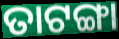
ତାଟଙ୍ଗା